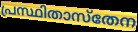
പ്രസ്ഥിതാസ്തേന